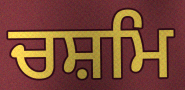
ਚਸ਼ਮਿ